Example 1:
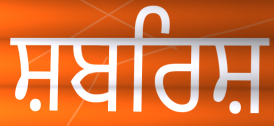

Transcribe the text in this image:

ਸ਼ਬਰਿਸ਼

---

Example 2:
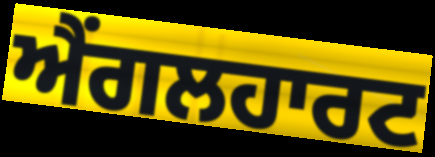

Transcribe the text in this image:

ਐਂਗਲਹਾਰਟ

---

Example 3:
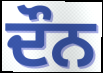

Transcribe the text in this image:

ਦੌਨ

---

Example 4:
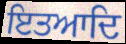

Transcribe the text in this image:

ਇਤਆਦਿ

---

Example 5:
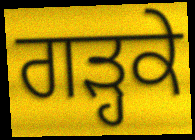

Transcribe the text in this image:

ਗੜ੍ਹਕੇ